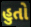
હુતો